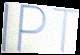
IPT